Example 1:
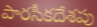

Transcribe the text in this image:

పారసీకదేశపు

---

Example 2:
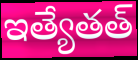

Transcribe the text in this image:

ఇత్యేతత్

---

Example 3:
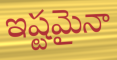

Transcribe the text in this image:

ఇష్టమైనా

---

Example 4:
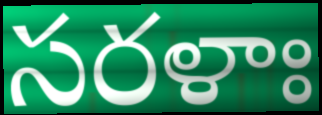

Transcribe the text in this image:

సరళాః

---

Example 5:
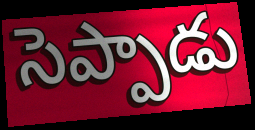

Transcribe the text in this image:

సెప్పాడు